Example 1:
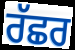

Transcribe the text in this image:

ਰੱਛਰ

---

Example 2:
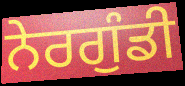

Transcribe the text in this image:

ਨੇਰਗੁੰਡੀ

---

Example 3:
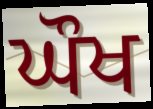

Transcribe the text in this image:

ਘੌਖ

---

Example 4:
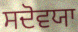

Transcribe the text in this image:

ਸਦੋਵਯਾ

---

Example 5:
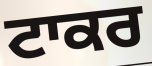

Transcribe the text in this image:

ਟਾਕਰ